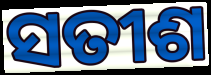
ସତୀଶ